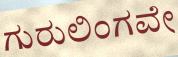
ಗುರುಲಿಂಗವೇ